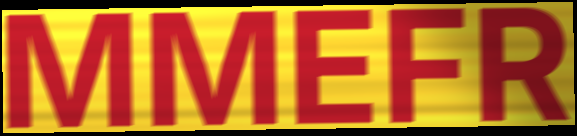
MMEFR